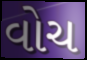
વોચ